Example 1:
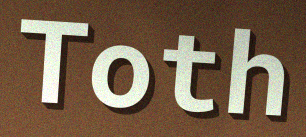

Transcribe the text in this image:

Toth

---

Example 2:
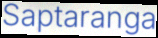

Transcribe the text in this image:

Saptaranga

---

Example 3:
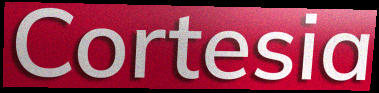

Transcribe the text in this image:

Cortesia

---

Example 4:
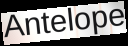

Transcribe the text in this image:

Antelope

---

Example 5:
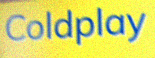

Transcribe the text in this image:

Coldplay